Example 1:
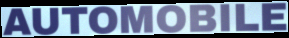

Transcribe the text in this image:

AUTOMOBILE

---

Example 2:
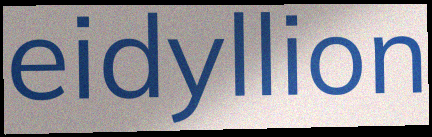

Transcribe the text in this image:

eidyllion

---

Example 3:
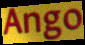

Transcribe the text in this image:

Ango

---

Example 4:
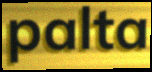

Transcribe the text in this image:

palta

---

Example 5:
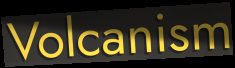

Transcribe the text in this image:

Volcanism